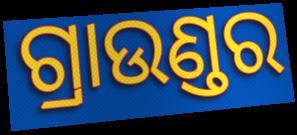
ଗ୍ରାଉଣ୍ଡର